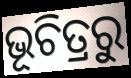
ଭୂଚିତ୍ରରୁ